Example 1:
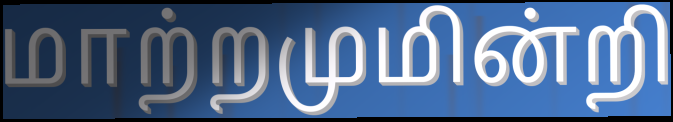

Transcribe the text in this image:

மாற்றமுமின்றி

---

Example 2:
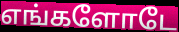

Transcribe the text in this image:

எங்களோடே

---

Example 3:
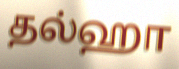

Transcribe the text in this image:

தல்ஹா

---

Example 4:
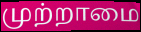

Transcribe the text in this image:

முற்றாமை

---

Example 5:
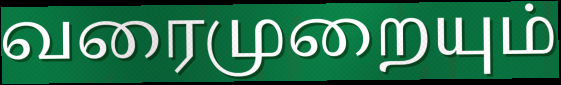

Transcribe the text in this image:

வரைமுறையும்